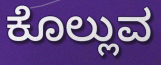
ಕೊಲ್ಲುವ